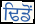
ਢਿਡੋਂ